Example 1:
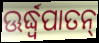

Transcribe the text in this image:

ଊର୍ଦ୍ଧ୍ବପାତନ୍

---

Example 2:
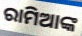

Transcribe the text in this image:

ରାମିଆଙ୍କ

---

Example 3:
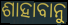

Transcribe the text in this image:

ଶାହାବାନୁ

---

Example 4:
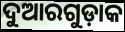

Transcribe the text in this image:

ଦୁଆରଗୁଡ଼ାକ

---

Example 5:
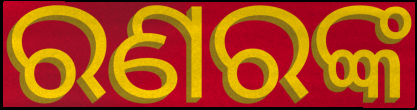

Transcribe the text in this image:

ରଣରଙ୍କ